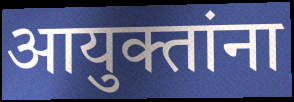
आयुक्तांना